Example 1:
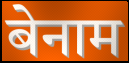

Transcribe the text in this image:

बेनाम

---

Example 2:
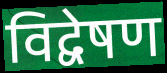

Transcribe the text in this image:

विद्वेषण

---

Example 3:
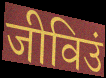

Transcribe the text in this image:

जीविउं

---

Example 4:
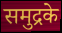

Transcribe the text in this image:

समुद्रके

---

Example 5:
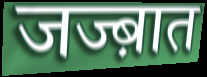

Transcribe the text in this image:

जज्ब़ात